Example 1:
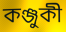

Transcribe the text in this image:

কঞ্জুকী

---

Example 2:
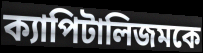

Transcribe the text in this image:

ক্যাপিটালিজমকে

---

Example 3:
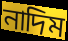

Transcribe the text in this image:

নাদিম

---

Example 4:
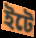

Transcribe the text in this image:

ইটে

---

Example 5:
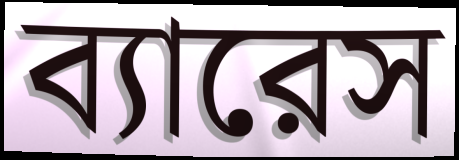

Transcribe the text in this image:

ব্যারেস